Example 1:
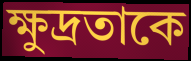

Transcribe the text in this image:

ক্ষুদ্রতাকে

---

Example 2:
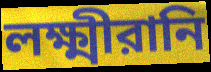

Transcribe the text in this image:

লক্ষ্মীরানি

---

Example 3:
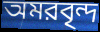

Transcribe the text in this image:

অমরবৃন্দ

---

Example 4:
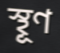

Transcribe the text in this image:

স্থূণ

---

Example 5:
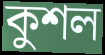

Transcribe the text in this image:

কুশল